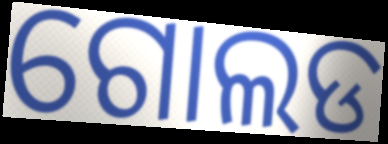
ଗୋଲଡ